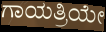
ಗಾಯತ್ರಿಯೇ